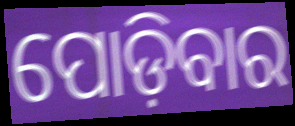
ପୋଡ଼ିବାର